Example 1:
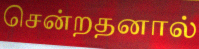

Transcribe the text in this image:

சென்றதனால்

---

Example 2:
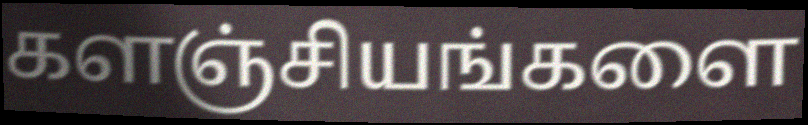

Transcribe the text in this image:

களஞ்சியங்களை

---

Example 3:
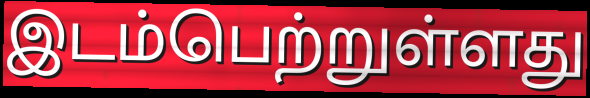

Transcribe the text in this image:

இடம்பெற்றுள்ளது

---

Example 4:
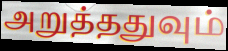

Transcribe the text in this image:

அறுத்ததுவும்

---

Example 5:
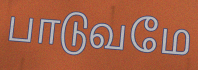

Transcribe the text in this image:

பாடுவமே